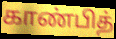
காண்பித்